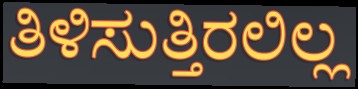
ತಿಳಿಸುತ್ತಿರಲಿಲ್ಲ